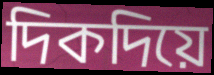
দিকদিয়ে